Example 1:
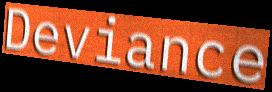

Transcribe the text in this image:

Deviance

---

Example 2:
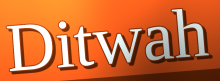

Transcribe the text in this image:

Ditwah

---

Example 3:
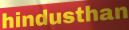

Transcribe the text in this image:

hindusthan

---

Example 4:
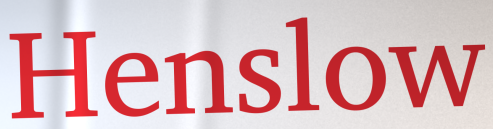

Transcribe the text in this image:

Henslow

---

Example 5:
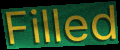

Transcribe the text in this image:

Filled